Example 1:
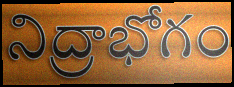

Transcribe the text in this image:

నిద్రాభోగం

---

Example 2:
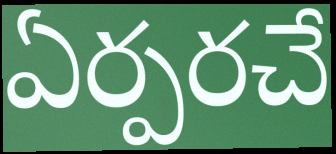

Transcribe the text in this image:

ఏర్పరచే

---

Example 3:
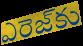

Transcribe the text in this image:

ఎరెజ్‌కు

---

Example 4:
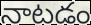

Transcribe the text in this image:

నాటడం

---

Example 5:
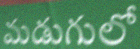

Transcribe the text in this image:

మడుగులో